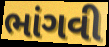
ભાંગવી